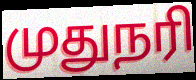
முதுநரி